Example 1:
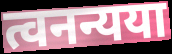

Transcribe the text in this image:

त्वनन्यया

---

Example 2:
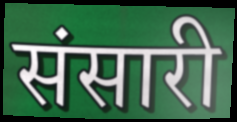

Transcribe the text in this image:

संसारी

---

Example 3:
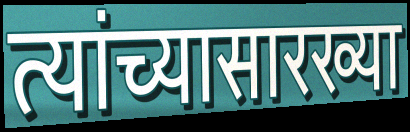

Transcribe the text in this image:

त्यांच्यासारख्या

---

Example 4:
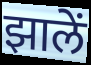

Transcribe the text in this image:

झालें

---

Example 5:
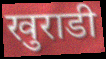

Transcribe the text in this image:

खुराडी